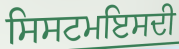
ਸਿਸਟਮਇਸਦੀ